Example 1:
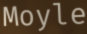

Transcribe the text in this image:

Moyle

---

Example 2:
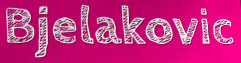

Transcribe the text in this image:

Bjelakovic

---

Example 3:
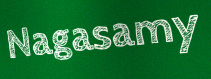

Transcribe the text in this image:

Nagasamy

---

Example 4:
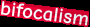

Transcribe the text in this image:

bifocalism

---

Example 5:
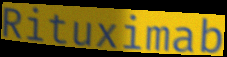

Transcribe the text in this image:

Rituximab